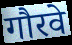
गौरवे